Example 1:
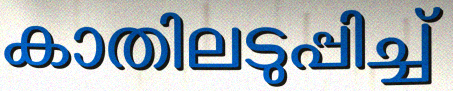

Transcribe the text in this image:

കാതിലടുപ്പിച്ച്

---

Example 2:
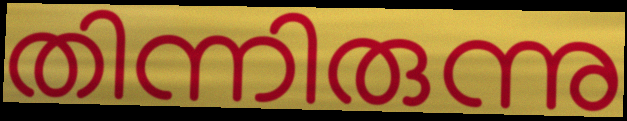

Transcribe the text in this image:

തിന്നിരുന്നു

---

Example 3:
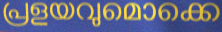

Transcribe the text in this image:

പ്രളയവുമൊക്കെ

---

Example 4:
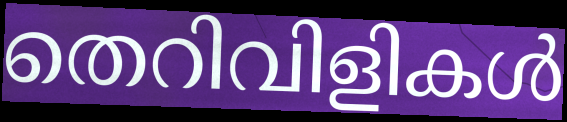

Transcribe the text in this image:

തെറിവിളികൾ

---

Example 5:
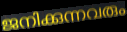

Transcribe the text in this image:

ജനിക്കുന്നവരും